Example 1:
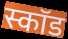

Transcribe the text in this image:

स्कॉड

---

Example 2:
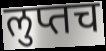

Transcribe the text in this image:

लुप्तच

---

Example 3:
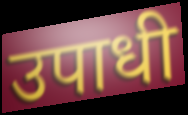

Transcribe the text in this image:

उपाधी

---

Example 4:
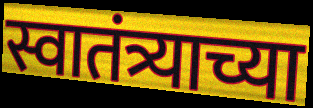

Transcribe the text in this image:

स्वातंत्र्याच्या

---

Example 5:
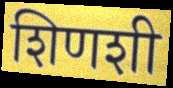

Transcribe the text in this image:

शिणशी